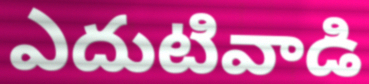
ఎదుటివాడి